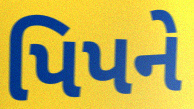
પિપને